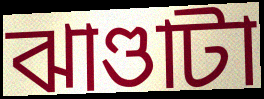
ঝাণ্ডাটা